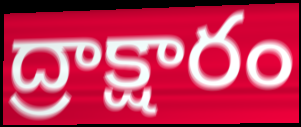
ద్రాక్షారం